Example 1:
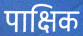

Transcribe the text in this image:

पाक्षिक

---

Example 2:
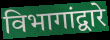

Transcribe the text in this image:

विभागांद्वारे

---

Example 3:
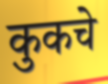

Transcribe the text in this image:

कुकचे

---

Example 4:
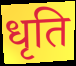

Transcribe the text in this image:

धृति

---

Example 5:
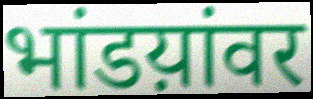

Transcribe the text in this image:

भांडय़ांवर